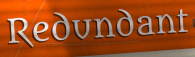
Redundant